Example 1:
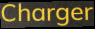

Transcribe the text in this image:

Charger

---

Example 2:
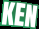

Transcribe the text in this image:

KEN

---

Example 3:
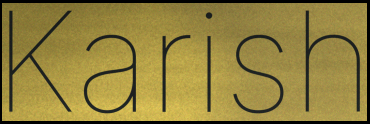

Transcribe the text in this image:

Karish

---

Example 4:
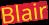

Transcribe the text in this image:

Blair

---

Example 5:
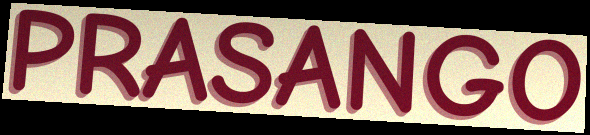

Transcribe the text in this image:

PRASANGO